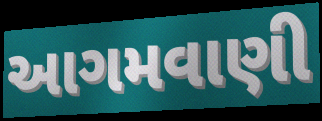
આગમવાણી